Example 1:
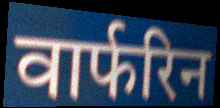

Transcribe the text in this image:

वार्फरिन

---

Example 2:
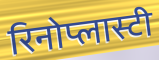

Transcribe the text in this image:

रिनोप्लास्टी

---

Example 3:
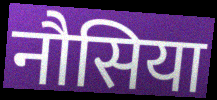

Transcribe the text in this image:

नौसिया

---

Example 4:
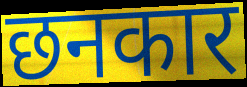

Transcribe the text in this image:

छनकार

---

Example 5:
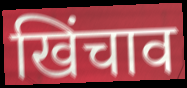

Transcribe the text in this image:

खिंचाव